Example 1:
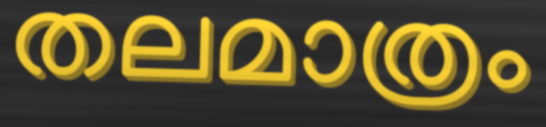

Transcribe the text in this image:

തലമാത്രം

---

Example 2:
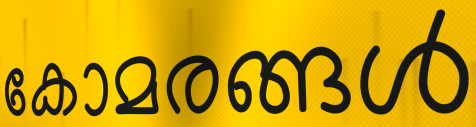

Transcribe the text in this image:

കോമരങ്ങൾ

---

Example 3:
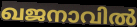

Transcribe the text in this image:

ഖജനാവിൽ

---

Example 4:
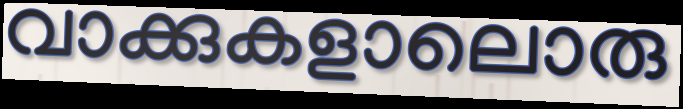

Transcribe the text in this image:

വാക്കുകളാലൊരു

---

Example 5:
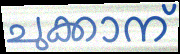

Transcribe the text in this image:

ചുക്കാന്